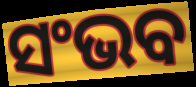
ସଂଭବ